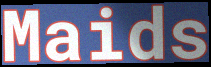
Maids